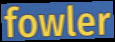
fowler